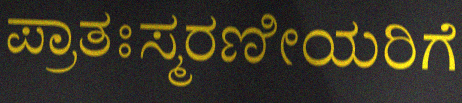
ಪ್ರಾತಃಸ್ಮರಣೀಯರಿಗೆ